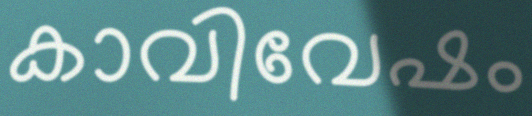
കാവിവേഷം